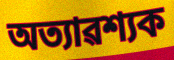
অত্যাৱশ্যক